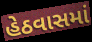
હેઠવાસમાં